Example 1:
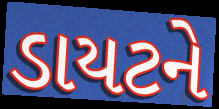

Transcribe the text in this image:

ડાયટને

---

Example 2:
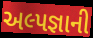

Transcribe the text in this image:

અલ્પજ્ઞાની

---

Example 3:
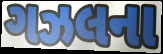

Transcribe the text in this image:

ગઝલના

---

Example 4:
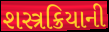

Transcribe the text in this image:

શસ્ત્રક્રિયાની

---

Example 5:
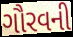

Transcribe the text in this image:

ગૌરવની